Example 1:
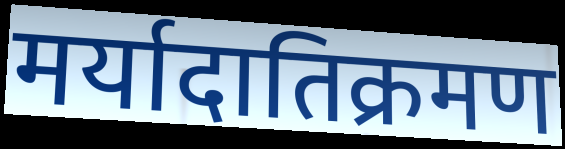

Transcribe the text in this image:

मर्यादातिक्रमण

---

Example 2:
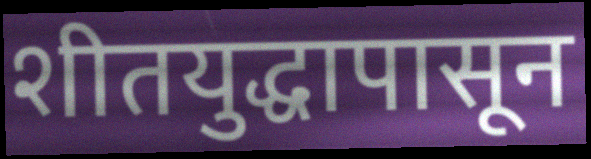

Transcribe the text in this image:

शीतयुद्धापासून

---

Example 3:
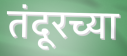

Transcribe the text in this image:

तंदूरच्या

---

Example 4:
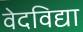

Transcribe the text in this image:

वेदविद्या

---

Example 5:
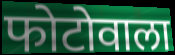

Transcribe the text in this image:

फोटोवाला